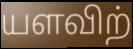
யளவிற்